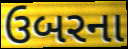
ઉબરના